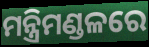
ମନ୍ତ୍ରିମଣ୍ଡଳରେ